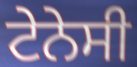
ਟੇਨੇਸੀ